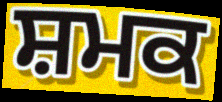
ਸ਼ਮਕ